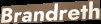
Brandreth